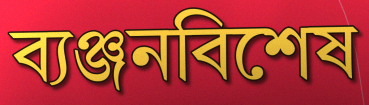
ব্যঞ্জনবিশেষ